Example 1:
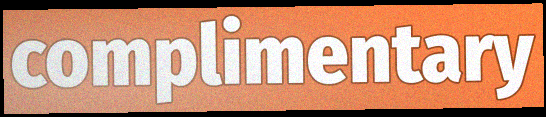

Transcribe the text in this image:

complimentary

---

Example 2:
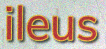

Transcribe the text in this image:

ileus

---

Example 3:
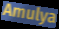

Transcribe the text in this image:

Amulya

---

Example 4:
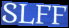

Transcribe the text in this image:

SLFF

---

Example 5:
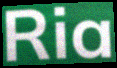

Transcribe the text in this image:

Ria